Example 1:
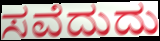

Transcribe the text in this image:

ಸವೆದುದು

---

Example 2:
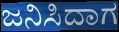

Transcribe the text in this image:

ಜನಿಸಿದಾಗ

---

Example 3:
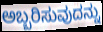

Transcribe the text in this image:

ಅಬ್ಬರಿಸುವುದನ್ನು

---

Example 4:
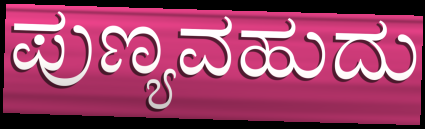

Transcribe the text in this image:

ಪುಣ್ಯವಹುದು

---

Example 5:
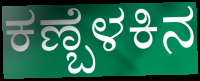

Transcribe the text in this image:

ಕಣ್ಬೆಳಕಿನ